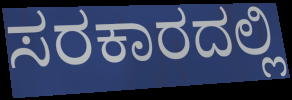
ಸರಕಾರದಲ್ಲಿ